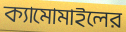
ক্যামোমাইলের